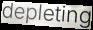
depleting